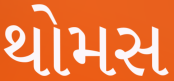
થોમસ